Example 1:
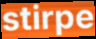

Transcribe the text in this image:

stirpe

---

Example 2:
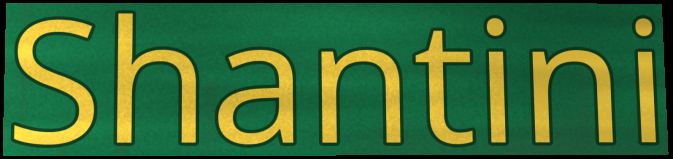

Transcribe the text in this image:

Shantini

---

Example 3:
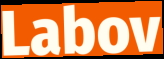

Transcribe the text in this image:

Labov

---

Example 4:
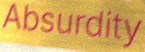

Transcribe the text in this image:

Absurdity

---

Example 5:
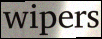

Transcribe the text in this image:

wipers